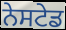
ਨੇਸਟੇਡ